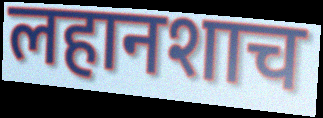
लहानशाच